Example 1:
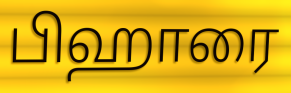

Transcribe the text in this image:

பிஹாரை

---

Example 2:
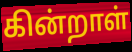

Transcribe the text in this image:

கின்றாள்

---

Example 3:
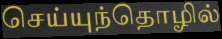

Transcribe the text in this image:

செய்யுந்தொழில்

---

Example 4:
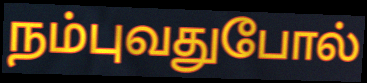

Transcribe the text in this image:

நம்புவதுபோல்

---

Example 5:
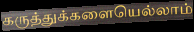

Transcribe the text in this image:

கருத்துக்களையெல்லாம்